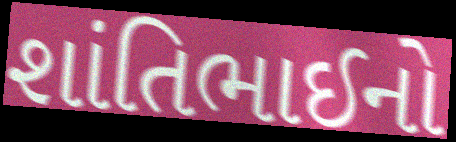
શાંતિભાઈનો